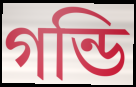
গন্ডি